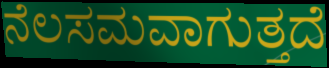
ನೆಲಸಮವಾಗುತ್ತದೆ